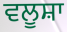
ਵਲੂਸ਼ਾ